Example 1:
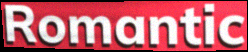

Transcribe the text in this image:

Romantic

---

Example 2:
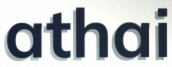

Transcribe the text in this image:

athai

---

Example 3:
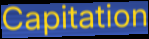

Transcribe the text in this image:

Capitation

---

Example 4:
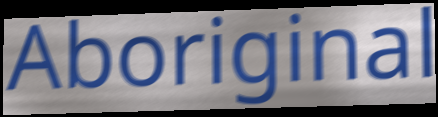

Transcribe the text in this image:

Aboriginal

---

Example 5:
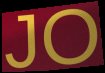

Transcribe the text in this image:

JO